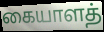
கையாளத்